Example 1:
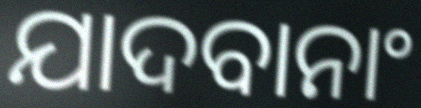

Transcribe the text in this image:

ଯାଦବାନାଂ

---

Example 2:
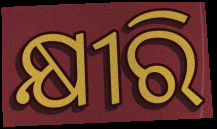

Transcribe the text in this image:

କ୍ଷୀରି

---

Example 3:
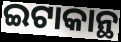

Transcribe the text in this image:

ଇଟାକାନ୍ଥ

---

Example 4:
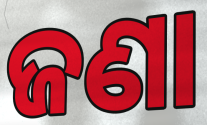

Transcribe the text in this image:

ଜଣା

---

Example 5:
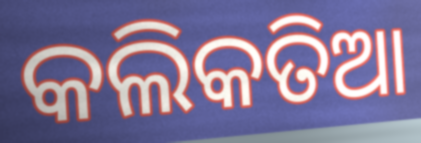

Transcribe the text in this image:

କଲିକତିଆ